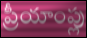
ప్రీయాంప్లు